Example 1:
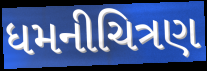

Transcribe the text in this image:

ધમનીચિત્રણ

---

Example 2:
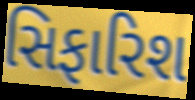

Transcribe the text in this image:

સિફારિશ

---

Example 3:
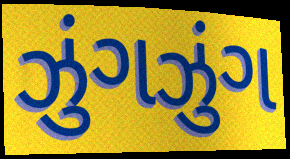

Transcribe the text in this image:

ઝુંગઝુંગ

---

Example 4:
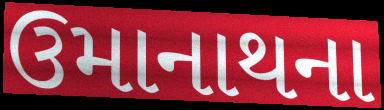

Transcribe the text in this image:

ઉમાનાથના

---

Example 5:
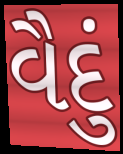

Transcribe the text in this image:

વૈદું